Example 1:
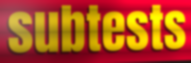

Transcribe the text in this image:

subtests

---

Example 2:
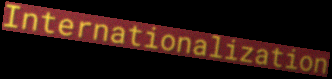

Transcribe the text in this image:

Internationalization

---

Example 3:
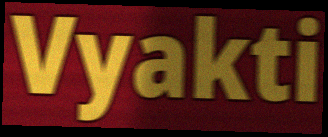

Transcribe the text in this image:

Vyakti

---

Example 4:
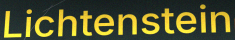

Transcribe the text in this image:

Lichtenstein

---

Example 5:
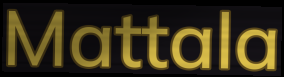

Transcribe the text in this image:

Mattala